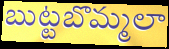
బుట్టబొమ్మలా